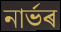
নাৰ্ভৰ